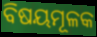
ବିଷୟମୂଳକ